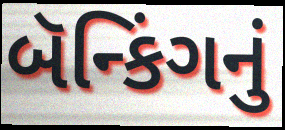
બૅન્કિંગનું